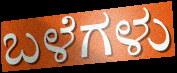
ಬಳೆಗಳು